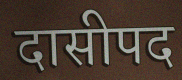
दासीपद